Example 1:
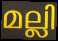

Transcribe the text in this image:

മല്ലി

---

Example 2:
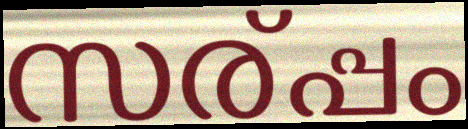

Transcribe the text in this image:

സര്പ്പം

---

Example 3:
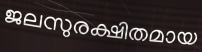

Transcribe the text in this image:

ജലസുരക്ഷിതമായ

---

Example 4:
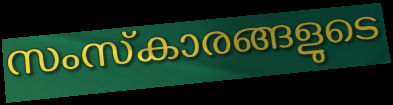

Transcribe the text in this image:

സംസ്‌കാരങ്ങളുടെ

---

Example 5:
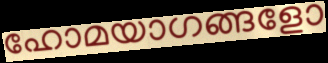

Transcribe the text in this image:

ഹോമയാഗങ്ങളോ